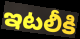
ఇటలీకి